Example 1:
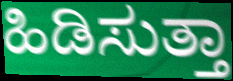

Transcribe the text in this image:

ಹಿಡಿಸುತ್ತಾ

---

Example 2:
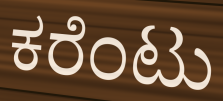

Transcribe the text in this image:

ಕರೆಂಟು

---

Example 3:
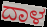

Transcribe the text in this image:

ದಾಳ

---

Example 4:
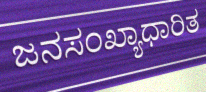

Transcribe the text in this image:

ಜನಸಂಖ್ಯಾಧಾರಿತ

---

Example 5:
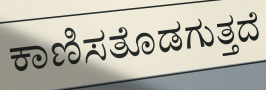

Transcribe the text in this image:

ಕಾಣಿಸತೊಡಗುತ್ತದೆ